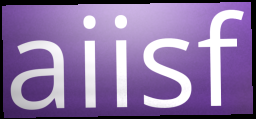
aiisf